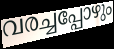
വരച്ചപ്പോഴും